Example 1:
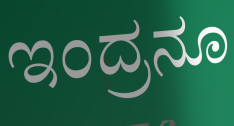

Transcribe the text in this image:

ಇಂದ್ರನೂ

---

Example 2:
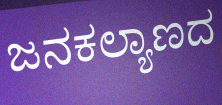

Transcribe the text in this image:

ಜನಕಲ್ಯಾಣದ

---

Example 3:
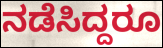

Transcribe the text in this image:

ನಡೆಸಿದ್ದರೂ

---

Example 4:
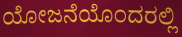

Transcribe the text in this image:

ಯೋಜನೆಯೊಂದರಲ್ಲಿ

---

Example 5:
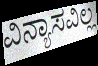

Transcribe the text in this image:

ವಿನ್ಯಾಸವಿಲ್ಲ